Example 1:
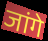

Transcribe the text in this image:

जांगे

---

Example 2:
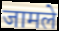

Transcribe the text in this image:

जामले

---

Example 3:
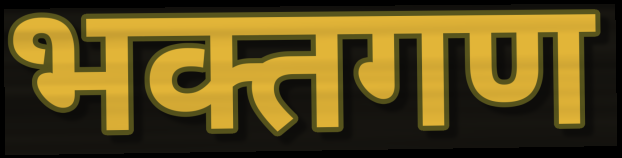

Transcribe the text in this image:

भक्तगण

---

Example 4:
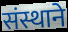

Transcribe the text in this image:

संस्थाने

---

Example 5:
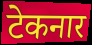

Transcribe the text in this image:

टेकनार